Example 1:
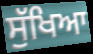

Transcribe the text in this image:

ਸੁੱਖਿਆ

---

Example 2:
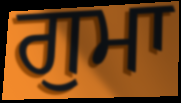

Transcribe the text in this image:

ਗੁਮਾ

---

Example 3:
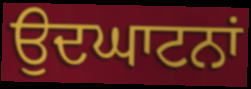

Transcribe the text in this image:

ਉਦਘਾਟਨਾਂ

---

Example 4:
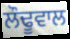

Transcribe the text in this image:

ਲੌਢੂਵਾਲ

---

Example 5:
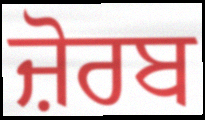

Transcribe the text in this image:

ਜ਼ੋਰਬ